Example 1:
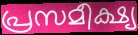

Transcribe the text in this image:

പ്രസമീക്ഷ്യ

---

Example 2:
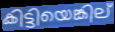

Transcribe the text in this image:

കിട്ടിയെങ്കില്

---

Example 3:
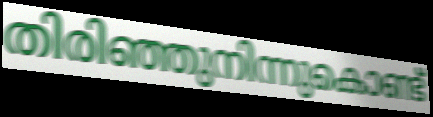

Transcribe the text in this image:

തിരിഞ്ഞുനിന്നുകൊണ്ട്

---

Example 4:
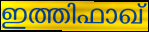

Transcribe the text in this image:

ഇത്തിഫാഖ്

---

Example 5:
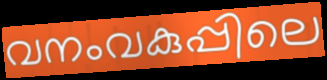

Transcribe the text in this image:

വനംവകുപ്പിലെ